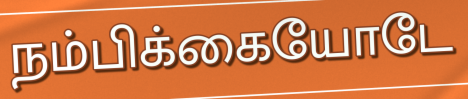
நம்பிக்கையோடே